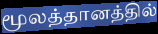
மூலத்தானத்தில்